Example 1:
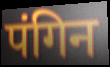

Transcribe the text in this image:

पंगिन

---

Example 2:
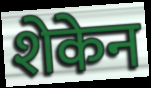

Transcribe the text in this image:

शेकेन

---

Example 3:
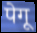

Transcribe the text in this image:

पेगू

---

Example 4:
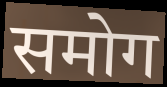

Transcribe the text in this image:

समोग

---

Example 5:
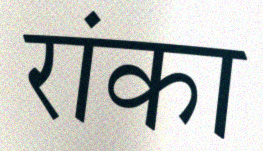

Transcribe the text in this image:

रांका